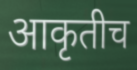
आकृतीच